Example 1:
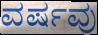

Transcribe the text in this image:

ವರ್ಷವು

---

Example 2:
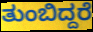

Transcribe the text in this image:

ತುಂಬಿದ್ದರೆ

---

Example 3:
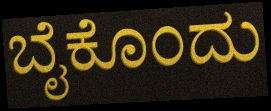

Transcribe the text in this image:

ಬೈಕೊಂದು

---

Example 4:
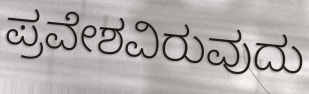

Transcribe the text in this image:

ಪ್ರವೇಶವಿರುವುದು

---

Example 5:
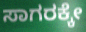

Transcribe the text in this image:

ಸಾಗರಕ್ಕೇ